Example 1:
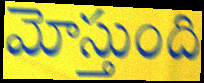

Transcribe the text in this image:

మోస్తుంది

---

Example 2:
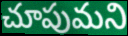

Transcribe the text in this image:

చూపుమని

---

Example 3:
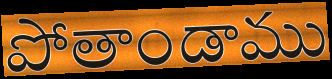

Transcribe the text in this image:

పోతాండాము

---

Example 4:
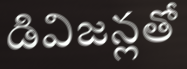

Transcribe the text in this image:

డివిజన్లతో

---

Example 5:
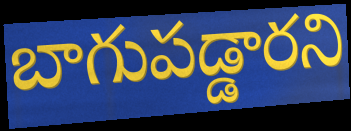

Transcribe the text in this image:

బాగుపడ్డారని